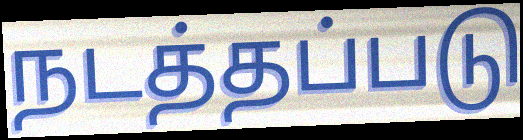
நடத்தப்படு